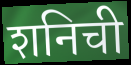
शनिची